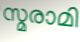
സ്മരാമി